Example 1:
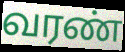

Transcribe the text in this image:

வரண்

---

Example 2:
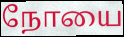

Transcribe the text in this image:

நோயை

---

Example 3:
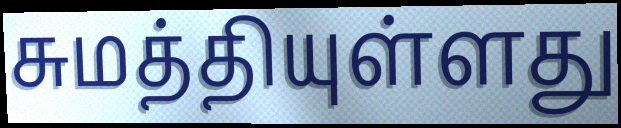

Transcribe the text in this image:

சுமத்தியுள்ளது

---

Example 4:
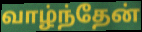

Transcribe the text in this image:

வாழ்ந்தேன்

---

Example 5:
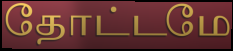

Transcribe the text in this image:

தோட்டமே